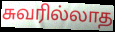
சுவரில்லாத